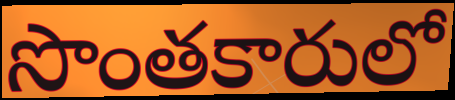
సొంతకారులో